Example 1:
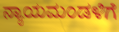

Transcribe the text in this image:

ನ್ಯಾಯಮಂಡಳಿಗೆ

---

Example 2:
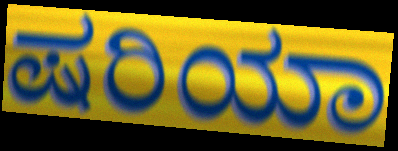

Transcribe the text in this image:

ಷರಿಯಾ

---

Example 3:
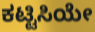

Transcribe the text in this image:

ಕಟ್ಟಿಸಿಯೇ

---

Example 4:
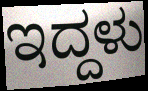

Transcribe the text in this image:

ಇದ್ದಳು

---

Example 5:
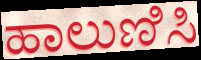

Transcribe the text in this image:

ಹಾಲುಣಿಸಿ